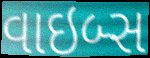
વાઇબ્સ